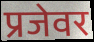
प्रजेवर